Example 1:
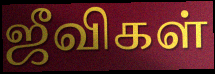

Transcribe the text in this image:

ஜீவிகள்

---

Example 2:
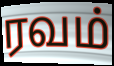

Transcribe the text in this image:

ரவம்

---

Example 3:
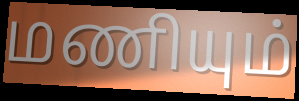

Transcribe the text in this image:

மணியும்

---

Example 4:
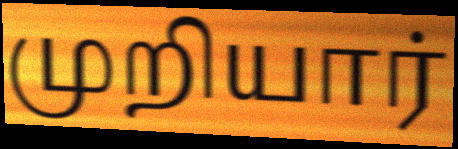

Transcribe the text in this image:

முறியார்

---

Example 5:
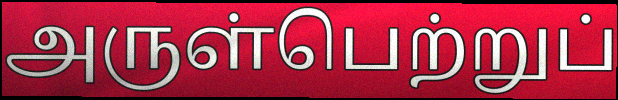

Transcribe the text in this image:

அருள்பெற்றுப்